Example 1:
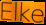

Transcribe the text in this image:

Elke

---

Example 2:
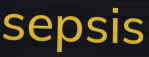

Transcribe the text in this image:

sepsis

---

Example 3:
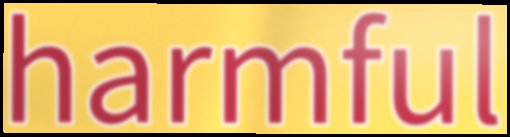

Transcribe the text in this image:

harmful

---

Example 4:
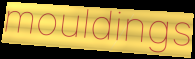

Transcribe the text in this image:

mouldings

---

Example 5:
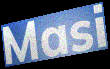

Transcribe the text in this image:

Masi